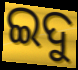
ଇଦୁ